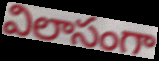
విలాసంగా